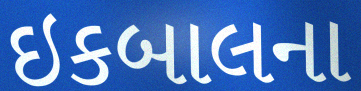
ઇકબાલના